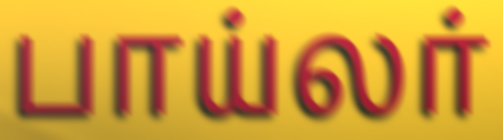
பாய்லர்